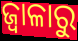
ଜ୍ଵାଳାରୁ